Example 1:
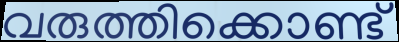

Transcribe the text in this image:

വരുത്തിക്കൊണ്ട്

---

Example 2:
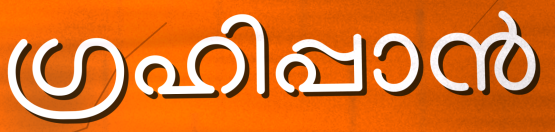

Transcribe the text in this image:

ഗ്രഹിപ്പാൻ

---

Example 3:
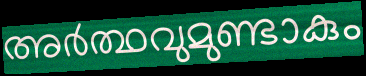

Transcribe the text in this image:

അർത്ഥവുമുണ്ടാകും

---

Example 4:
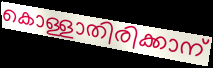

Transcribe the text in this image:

കൊള്ളാതിരിക്കാന്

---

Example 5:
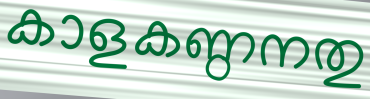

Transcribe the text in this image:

കാളകണ്ഠനതു